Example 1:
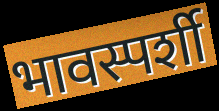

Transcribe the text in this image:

भावस्पर्शी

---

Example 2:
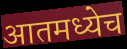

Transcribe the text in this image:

आतमध्येच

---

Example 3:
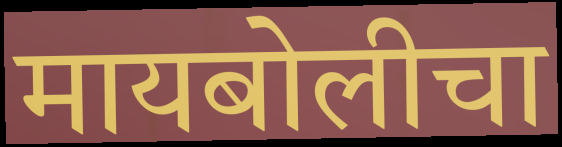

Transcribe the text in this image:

मायबोलीचा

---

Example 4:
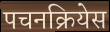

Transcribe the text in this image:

पचनक्रियेस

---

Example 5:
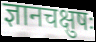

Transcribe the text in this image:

ज्ञानचक्षुषः